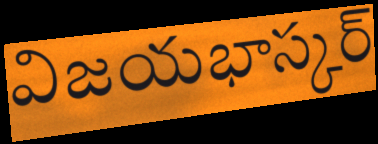
విజయభాస్కర్